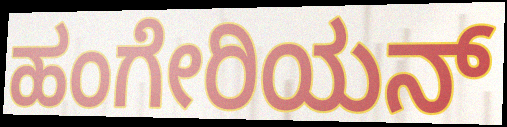
ಹಂಗೇರಿಯನ್